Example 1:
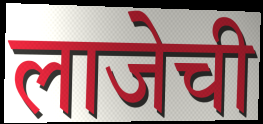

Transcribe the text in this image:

लाजेची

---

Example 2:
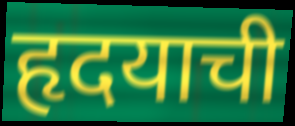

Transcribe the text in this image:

हृदयाची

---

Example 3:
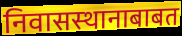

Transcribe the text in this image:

निवासस्थानाबाबत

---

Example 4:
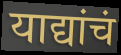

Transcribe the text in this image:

याद्यांचं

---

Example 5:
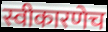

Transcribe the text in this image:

स्वीकारणेच